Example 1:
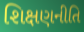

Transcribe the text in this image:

શિક્ષણનીતિ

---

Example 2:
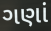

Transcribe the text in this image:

ગણાં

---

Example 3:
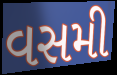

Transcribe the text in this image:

વસમી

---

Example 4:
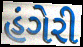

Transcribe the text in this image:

હંગેરી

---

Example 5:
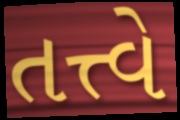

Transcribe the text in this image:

તત્ત્વે